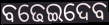
ବଢେଇଦେବ